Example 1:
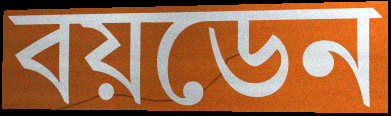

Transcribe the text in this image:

বয়ডেন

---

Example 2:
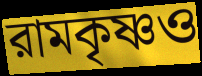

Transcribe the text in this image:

রামকৃষ্ণও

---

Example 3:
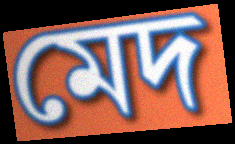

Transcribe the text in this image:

মেদ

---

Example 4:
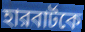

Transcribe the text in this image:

হারবার্টকে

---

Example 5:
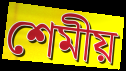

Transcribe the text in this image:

শেমীয়